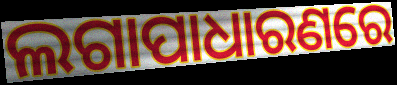
ଲଗାପାଧାରଣରେ